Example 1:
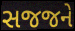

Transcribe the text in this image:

સજજને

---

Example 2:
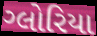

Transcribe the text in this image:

ગ્લોરિયા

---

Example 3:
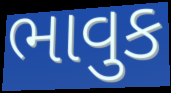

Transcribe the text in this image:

ભાવુક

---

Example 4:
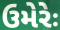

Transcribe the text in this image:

ઉમેરેઃ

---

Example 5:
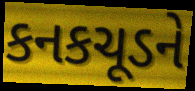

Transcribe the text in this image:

કનકચૂડને